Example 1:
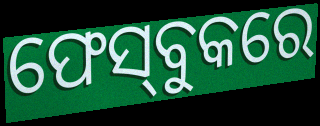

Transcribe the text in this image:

ଫେସ୍‌ବୁକରେ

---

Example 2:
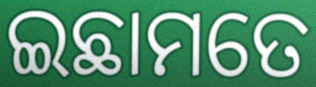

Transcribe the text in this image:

ଇଛାମତେ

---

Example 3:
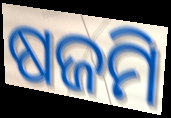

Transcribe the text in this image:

ଷଜମି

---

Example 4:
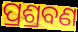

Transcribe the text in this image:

ପ୍ରଶ୍ରବଣ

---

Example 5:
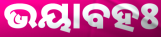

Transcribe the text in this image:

ଭୟାବହଃ